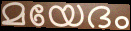
മയേദം